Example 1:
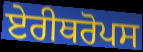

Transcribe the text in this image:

ਏਰੀਥਰੋਪਸ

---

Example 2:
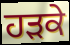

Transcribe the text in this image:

ਹੜਕੇ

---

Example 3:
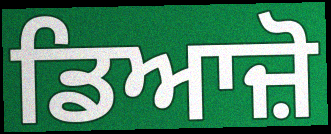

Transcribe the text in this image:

ਡਿਆਜ਼ੋ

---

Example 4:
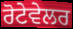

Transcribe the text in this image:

ਰੋਟੇਵੇਲਰ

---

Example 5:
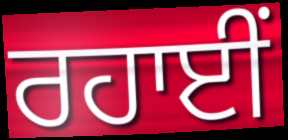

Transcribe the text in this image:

ਰਹਾਈਂ